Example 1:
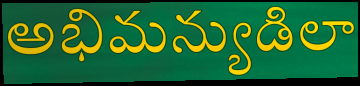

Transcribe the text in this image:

అభిమన్యుడిలా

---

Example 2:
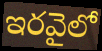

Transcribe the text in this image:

ఇరవైలో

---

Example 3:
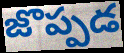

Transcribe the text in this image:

జొప్పడ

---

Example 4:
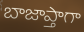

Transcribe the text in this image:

బాజాప్తాగా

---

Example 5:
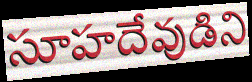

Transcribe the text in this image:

సూహదేవుడిని